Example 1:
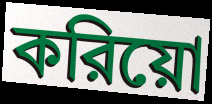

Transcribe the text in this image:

করিয়ো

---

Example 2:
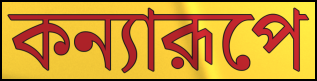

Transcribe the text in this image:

কন্যারূপে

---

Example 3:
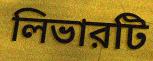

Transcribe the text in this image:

লিভারটি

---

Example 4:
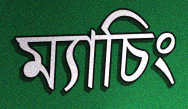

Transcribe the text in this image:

ম্যাচিং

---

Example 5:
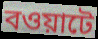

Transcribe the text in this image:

বওয়াটে